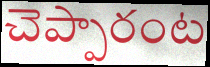
చెప్పారంట